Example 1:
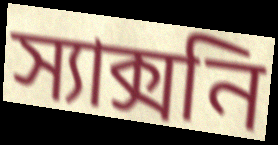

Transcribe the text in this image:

স্যাক্সনি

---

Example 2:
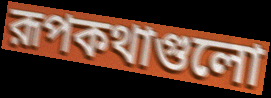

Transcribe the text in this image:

রূপকথাগুলো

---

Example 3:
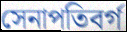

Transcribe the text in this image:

সেনাপতিবর্গ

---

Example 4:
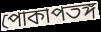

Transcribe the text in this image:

পোকাপতঙ্গ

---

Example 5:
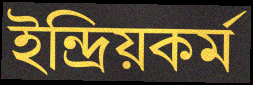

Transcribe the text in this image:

ইন্দ্রিয়কর্ম